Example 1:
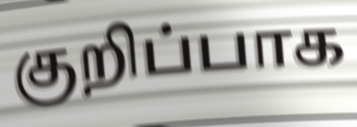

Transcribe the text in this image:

குறிப்பாக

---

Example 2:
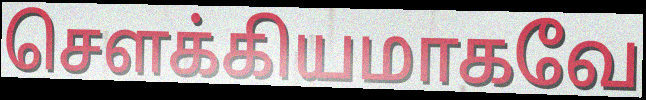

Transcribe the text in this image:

சௌக்கியமாகவே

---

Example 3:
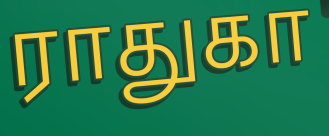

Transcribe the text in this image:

ராதுகா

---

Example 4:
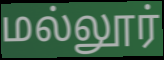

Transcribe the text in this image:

மல்லூர்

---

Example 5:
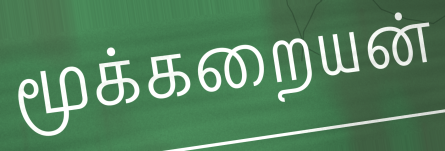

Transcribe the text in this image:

மூக்கறையன்